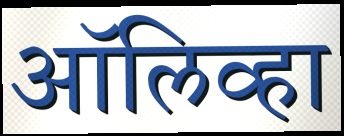
ऑलिव्हा